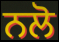
ਨਲੋ